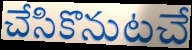
చేసికొనుటచే